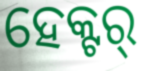
ହେକ୍ଟର୍